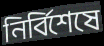
নিৰ্বিশেষে